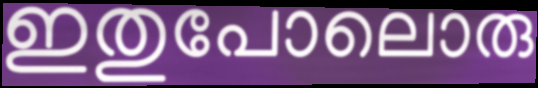
ഇതുപോലൊരു